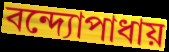
বন্দ্যোপাধায়